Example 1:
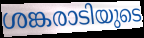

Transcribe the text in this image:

ശങ്കരാടിയുടെ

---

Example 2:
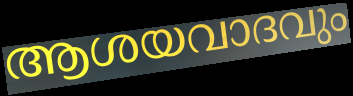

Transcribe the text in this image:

ആശയവാദവും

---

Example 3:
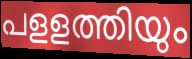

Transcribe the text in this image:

പളളത്തിയും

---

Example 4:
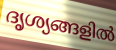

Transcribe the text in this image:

ദൃശ്യങ്ങളിൽ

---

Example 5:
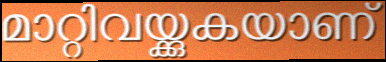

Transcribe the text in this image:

മാറ്റിവയ്ക്കുകയാണ്